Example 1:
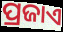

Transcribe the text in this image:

ପ୍ରଜାଏ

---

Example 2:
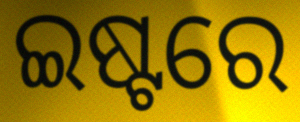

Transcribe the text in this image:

ଇଷ୍ଟରେ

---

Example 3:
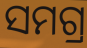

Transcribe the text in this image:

ସମଗ୍ର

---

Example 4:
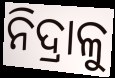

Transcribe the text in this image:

ନିଦ୍ରାଳୁ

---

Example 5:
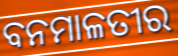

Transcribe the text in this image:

ବନମାଳତୀର